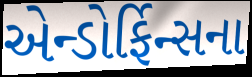
એન્ડોર્ફિન્સના